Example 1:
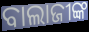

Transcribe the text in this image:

ବାଲାଜୀଙ୍କ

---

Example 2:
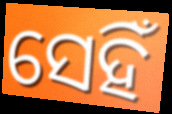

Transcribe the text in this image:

ସେହିଁ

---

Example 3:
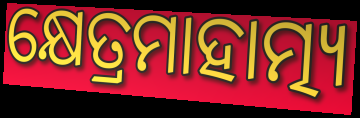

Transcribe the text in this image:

କ୍ଷେତ୍ରମାହାତ୍ମ୍ୟ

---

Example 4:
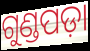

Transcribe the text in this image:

ଗୁଣ୍ଡପଡ଼ା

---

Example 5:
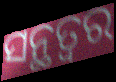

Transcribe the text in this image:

ସନ୍ଥତ୍ବର